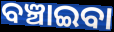
ବଞ୍ଚାଇବା